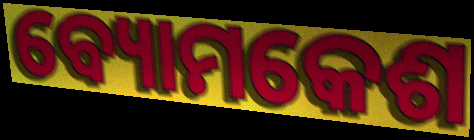
ବ୍ୟୋମକେଶ